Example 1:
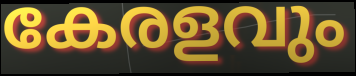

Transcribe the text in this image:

കേരളവും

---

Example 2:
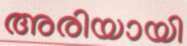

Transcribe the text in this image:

അരിയായി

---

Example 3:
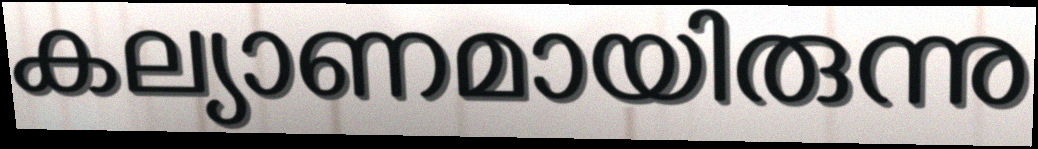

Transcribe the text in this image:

കല്യാണമായിരുന്നു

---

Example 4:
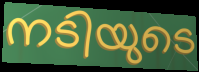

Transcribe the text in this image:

നടിയുടെ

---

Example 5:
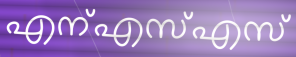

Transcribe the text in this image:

എന്എസ്എസ്